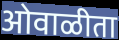
ओवाळीता